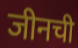
जीनची